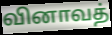
வினாவத்